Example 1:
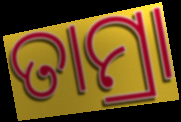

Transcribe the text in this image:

ତାମ୍ରା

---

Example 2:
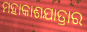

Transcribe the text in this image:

ମହାକାଶଯାତ୍ରାର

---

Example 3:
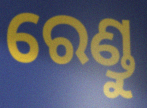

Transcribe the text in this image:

ରେଣ୍ଡୁ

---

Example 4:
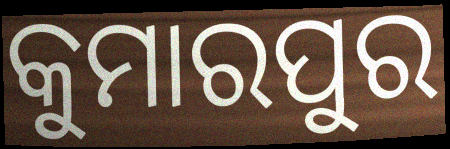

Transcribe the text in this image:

କୁମାରପୁର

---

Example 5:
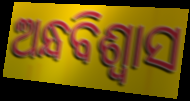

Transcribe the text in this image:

ଅନ୍ଧବିଶ୍ଵାସ